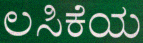
ಲಸಿಕೆಯ